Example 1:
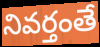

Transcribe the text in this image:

నివర్తంతే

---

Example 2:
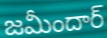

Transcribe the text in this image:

జమీందార్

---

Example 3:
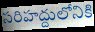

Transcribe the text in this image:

సరిహద్దులోనికి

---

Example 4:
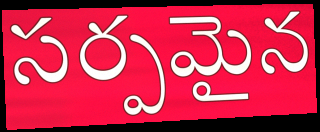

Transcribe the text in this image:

సర్పమైన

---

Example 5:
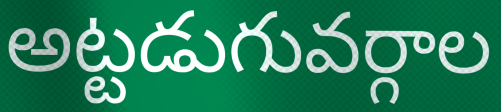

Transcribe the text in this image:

అట్టడుగువర్గాల